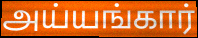
அய்யங்கார்